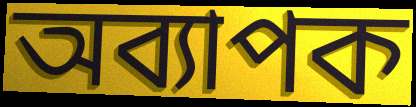
অব্যাপক